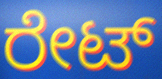
ರೇಟ್